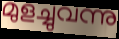
മുളച്ചുവന്നു